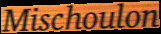
Mischoulon